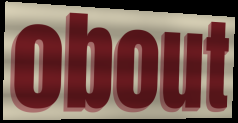
obout